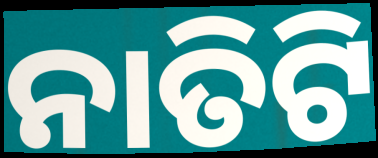
ନାତିଟି